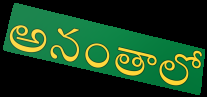
అనంతాలో